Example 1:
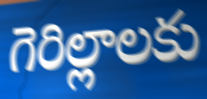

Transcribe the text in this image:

గెరిల్లాలకు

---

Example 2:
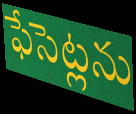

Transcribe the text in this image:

ఫేసెట్లను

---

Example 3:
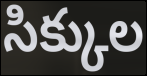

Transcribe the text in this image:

సిక్కుల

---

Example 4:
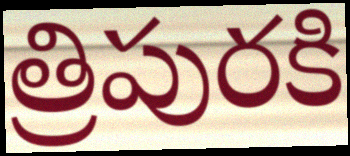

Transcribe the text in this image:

త్రిపురకి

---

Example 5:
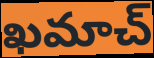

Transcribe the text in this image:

ఖమాచ్